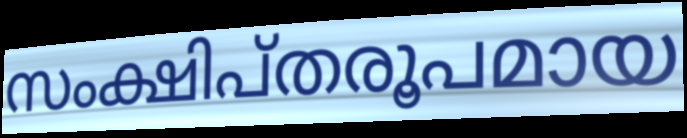
സംക്ഷിപ്തരൂപമായ